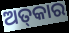
ଅତ୍‌କାର